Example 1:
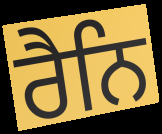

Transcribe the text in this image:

ਰੈਨਿ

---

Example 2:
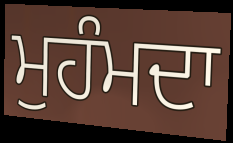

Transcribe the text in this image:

ਮੁਹੰਮਦਾ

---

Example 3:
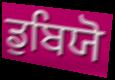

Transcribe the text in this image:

ਡੁਬਿਯੋ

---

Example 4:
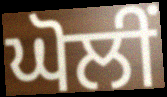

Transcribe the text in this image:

ਘੋਲੀਂ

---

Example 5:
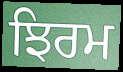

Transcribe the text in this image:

ਝਿਰਮ